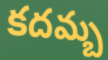
కదమ్బ